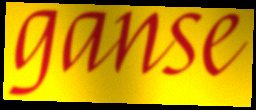
ganse